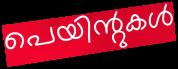
പെയിന്റുകൾ